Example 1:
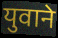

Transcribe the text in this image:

युवाने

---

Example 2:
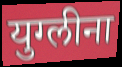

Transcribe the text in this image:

युग्लीना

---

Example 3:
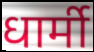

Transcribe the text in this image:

धार्मी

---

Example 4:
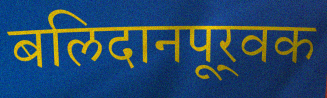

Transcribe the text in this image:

बलिदानपूर्वक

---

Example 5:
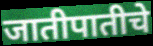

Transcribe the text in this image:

जातीपातीचे